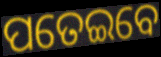
ପତେଇବେ